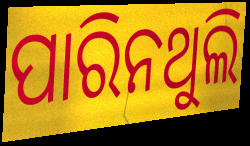
ପାରିନଥୁଲି